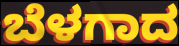
ಬೆಳಗಾದ